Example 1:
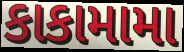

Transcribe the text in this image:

કાકામામા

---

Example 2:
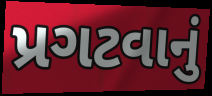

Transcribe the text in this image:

પ્રગટવાનું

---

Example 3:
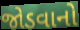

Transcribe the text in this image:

જોડવાનો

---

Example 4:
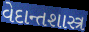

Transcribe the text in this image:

વેદાન્તશાસ્ત્ર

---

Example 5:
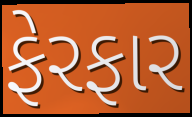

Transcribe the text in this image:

ફેરફાર